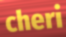
cheri